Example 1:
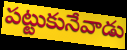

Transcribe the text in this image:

పట్టుకునేవాడు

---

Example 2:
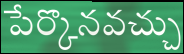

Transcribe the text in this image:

పేర్కొనవచ్చు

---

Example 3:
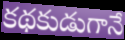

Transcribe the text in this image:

కథకుడుగానే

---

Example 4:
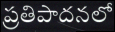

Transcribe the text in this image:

ప్రతిపాదనలో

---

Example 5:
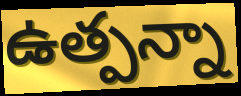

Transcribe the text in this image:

ఉత్పన్నా